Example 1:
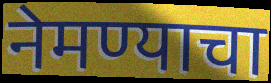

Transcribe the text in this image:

नेमण्याचा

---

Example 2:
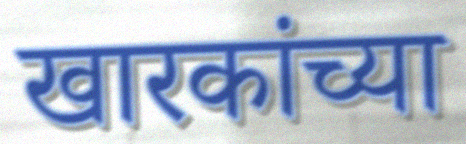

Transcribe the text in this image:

खारकांच्या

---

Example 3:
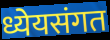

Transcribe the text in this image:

ध्येयसंगत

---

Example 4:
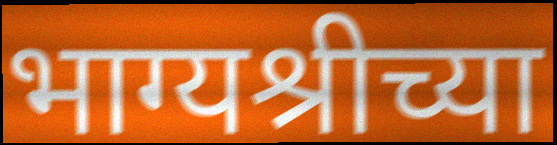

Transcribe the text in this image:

भाग्यश्रीच्या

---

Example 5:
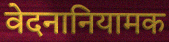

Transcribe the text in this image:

वेदनानियामक